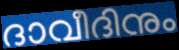
ദാവീദിനും